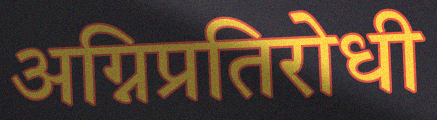
अग्निप्रतिरोधी